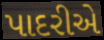
પાદરીએ